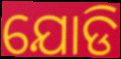
ଯୋଡି